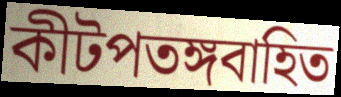
কীটপতঙ্গবাহিত